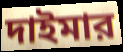
দাইমার